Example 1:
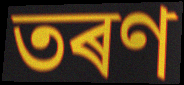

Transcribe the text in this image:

তৰণ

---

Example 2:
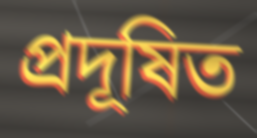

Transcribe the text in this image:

প্ৰদূষিত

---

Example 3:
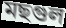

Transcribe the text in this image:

মছগুল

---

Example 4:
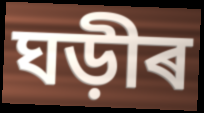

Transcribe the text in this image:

ঘড়ীৰ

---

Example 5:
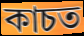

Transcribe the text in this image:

কাচত